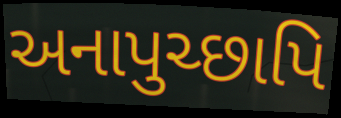
અનાપુચ્છાપિ